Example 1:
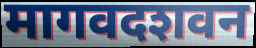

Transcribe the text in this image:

मागवदशवन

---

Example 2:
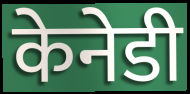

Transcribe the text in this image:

केनेडी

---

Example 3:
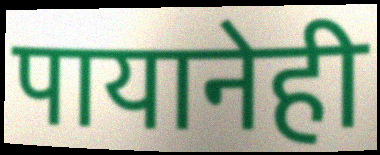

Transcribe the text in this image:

पायानेही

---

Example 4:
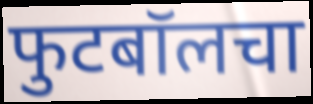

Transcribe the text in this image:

फुटबॉलचा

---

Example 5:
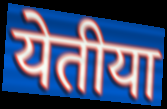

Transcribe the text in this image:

येतीया